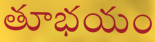
తూభయం